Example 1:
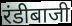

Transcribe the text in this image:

रंडीबाजी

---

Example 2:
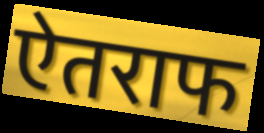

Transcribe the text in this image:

ऐतराफ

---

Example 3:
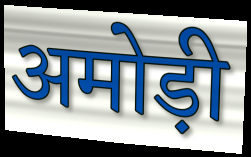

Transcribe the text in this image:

अमोड़ी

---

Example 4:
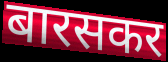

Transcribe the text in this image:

बारसकर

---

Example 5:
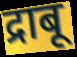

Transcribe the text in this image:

द्राबू